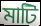
মাটি